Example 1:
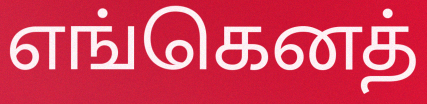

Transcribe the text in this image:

எங்கெனத்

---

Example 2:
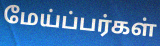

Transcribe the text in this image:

மேய்ப்பர்கள்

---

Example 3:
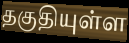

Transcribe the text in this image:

தகுதியுள்ள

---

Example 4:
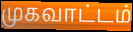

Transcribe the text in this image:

முகவாட்டம்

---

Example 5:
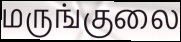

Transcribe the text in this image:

மருங்குலை